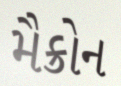
મૈક્રોન